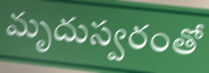
మృదుస్వరంతో